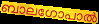
ബാലഗോപാൽ